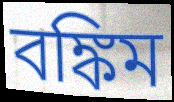
বঙ্কিম